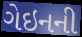
ગેઇનની